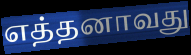
எத்தனாவது